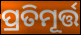
ପ୍ରତିମୂର୍ତ୍ତ